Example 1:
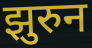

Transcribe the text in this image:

झुरुन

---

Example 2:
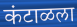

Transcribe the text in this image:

कंटाळला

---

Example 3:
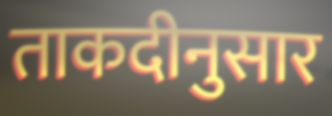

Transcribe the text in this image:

ताकदीनुसार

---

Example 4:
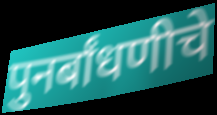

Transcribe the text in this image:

पुनर्बांधणीचे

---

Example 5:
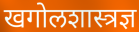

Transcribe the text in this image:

खगोलशास्त्रज्ञ